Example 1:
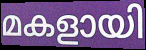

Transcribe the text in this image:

മകളായി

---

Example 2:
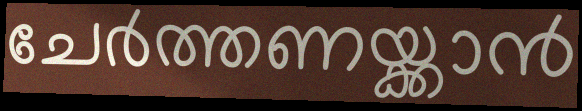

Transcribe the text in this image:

ചേർത്തണയ്ക്കാൻ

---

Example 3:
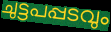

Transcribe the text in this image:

ചുട്ടപപ്പടവും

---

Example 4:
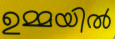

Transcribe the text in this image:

ഉമ്മയിൽ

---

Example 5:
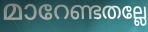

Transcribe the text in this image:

മാറേണ്ടതല്ലേ